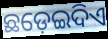
ଛଡ଼େଇଦିଏ